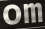
om